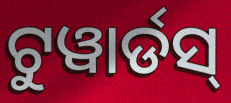
ଟୁୱାର୍ଡସ୍